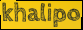
khalipo